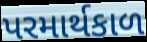
પરમાર્થકાળ